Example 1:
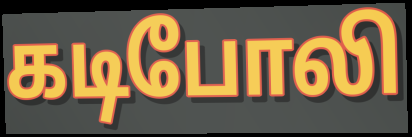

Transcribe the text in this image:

கடிபோலி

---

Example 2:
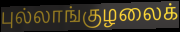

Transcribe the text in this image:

புல்லாங்குழலைக்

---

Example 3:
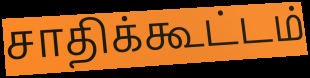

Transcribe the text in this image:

சாதிக்கூட்டம்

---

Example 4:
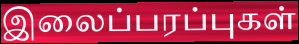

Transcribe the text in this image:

இலைப்பரப்புகள்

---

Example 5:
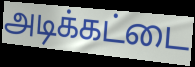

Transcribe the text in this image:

அடிக்கட்டை